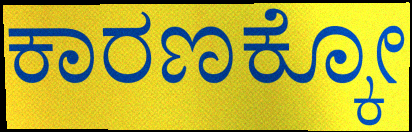
ಕಾರಣಕ್ಕೋ